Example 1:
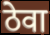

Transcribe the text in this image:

ठेवा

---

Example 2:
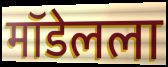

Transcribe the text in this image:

मॉडेलला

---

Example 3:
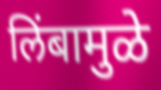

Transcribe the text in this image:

लिंबामुळे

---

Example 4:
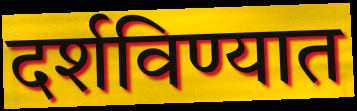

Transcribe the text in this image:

दर्शविण्यात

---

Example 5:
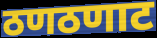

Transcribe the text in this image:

ठणठणाट